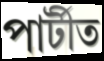
পাৰ্টীত